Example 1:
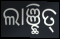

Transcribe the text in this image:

ଲାଞ୍ଛିତ୍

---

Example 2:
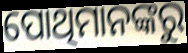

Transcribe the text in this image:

ପୋଥିମାନଙ୍କରୁ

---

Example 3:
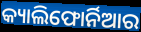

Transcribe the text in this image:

କ୍ୟାଲିଫୋର୍ନିଆର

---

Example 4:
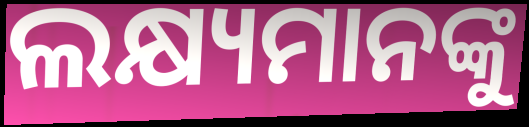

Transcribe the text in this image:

ଲକ୍ଷ୍ୟମାନଙ୍କୁ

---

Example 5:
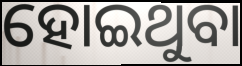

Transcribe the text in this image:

ହୋଇଥୁବା